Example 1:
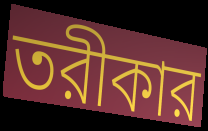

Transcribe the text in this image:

তরীকার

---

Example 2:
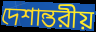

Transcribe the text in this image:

দেশান্তরীয়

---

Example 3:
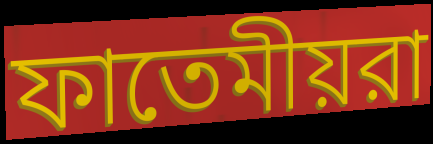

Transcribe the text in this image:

ফাতেমীয়রা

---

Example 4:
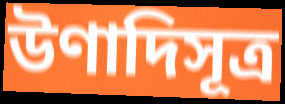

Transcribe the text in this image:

উণাদিসূত্র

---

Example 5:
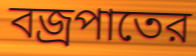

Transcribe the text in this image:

বজ্রপাতের